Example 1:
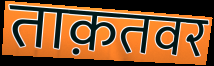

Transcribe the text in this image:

ताक़तवर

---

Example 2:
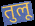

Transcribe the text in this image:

तुलू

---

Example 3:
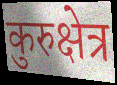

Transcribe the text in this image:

कुरुक्षेत्र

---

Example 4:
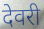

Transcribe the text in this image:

देवरी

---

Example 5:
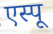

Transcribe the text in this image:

एस्पू